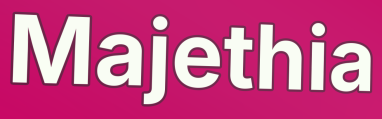
Majethia